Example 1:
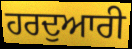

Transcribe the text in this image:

ਹਰਦੁਆਰੀ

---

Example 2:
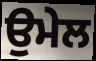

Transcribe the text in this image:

ਉਮੇਲ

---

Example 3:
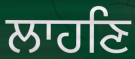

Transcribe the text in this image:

ਲਾਹਣਿ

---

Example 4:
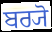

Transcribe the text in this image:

ਬਰ੍ਯੋ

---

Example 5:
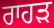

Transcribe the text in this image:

ਰਾਹੜ